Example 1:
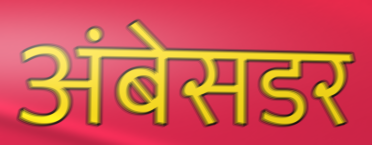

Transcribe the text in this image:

अंबेसडर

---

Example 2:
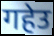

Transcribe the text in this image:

गहेउ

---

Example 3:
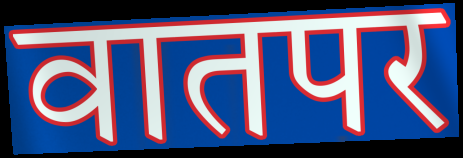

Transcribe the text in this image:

वातपर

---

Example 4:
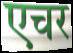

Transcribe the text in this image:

एचर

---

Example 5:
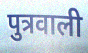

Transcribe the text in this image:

पुत्रवाली